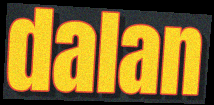
dalan